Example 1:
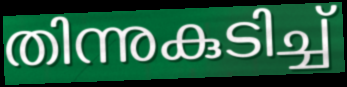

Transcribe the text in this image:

തിന്നുകുടിച്ച്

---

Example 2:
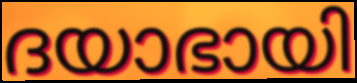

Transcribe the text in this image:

ദയാഭായി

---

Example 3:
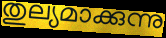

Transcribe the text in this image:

തുല്യമാക്കുന്നു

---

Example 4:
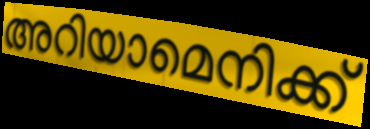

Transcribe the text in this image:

അറിയാമെനിക്ക്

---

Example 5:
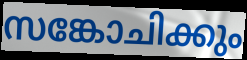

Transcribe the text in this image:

സങ്കോചിക്കും